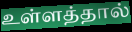
உள்ளத்தால்